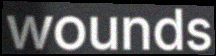
wounds